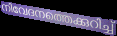
നിവേദനത്തെക്കുറിച്ച്